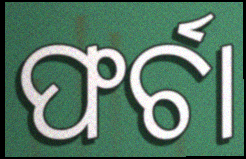
ଫର୍ଚା